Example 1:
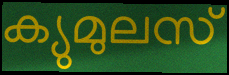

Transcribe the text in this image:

ക്യുമുലസ്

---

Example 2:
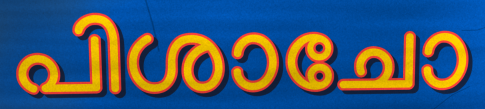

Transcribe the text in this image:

പിശാചോ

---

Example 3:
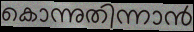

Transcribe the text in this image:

കൊന്നുതിന്നാൻ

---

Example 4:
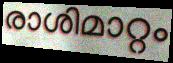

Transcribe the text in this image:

രാശിമാറ്റം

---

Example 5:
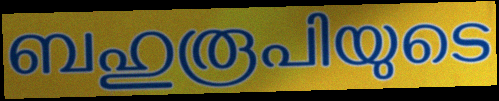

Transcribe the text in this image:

ബഹുരൂപിയുടെ